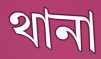
থানা